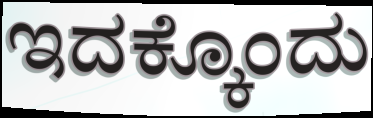
ಇದಕ್ಕೊಂದು